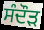
ਸੰਦੌੜ